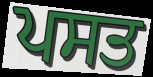
ਪਸਤ